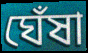
ঘেঁষা